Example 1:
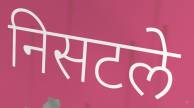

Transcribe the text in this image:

निसटले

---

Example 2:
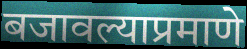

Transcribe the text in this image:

बजावल्याप्रमाणे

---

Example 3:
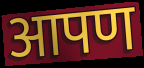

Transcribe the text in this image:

आपण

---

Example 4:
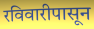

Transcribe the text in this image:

रविवारीपासून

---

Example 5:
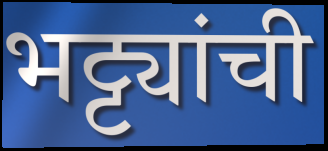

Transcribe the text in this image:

भट्ट्यांची